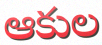
ఆకుల